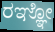
ರಞ್ಞೋ